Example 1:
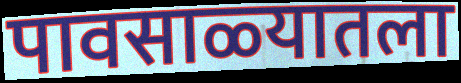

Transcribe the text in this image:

पावसाळ्यातला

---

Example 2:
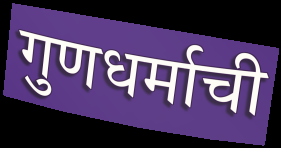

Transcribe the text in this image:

गुणधर्माची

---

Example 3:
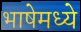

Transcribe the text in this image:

भाषेमध्ये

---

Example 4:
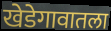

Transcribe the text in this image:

खेडेगावातला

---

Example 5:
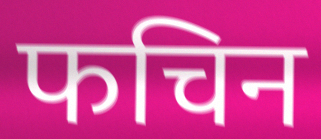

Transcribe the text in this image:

फचिन